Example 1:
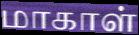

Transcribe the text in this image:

மாகாள்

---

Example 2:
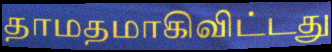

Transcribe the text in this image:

தாமதமாகிவிட்டது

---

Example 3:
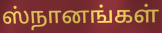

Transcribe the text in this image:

ஸ்நானங்கள்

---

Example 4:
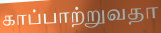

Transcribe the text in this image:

காப்பாற்றுவதா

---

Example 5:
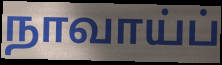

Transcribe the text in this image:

நாவாய்ப்